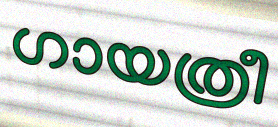
ഗായത്രീ